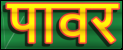
पावर